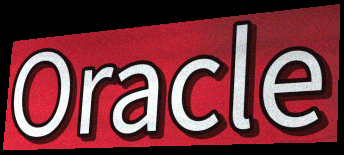
Oracle